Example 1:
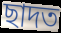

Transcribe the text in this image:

ছাদত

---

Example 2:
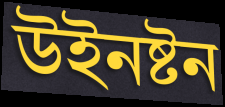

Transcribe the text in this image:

উইনষ্টন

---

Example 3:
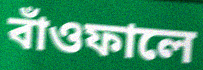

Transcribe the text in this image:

বাঁওফালে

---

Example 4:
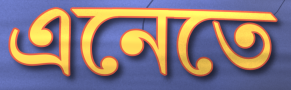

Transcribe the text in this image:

এনেতে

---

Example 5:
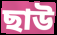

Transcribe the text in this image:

ছাউ